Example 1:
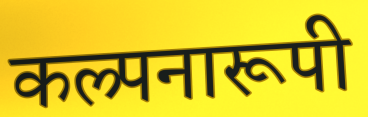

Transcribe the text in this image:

कल्पनारूपी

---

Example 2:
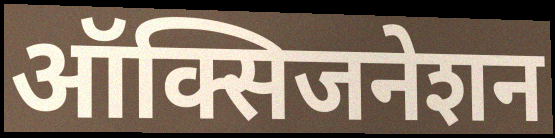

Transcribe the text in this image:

ऑक्सिजनेशन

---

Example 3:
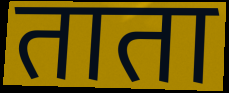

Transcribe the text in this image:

ताता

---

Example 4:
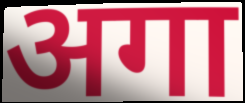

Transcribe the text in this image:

अगा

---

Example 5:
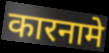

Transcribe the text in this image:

कारनामे